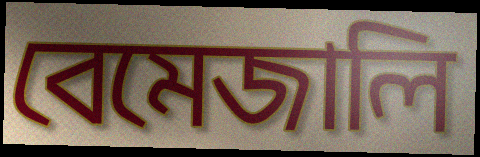
বেমেজালি